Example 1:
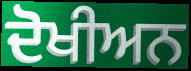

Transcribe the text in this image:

ਦੋਖੀਅਨ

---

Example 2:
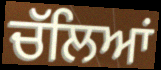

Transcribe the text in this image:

ਚੱਲਿਆਂ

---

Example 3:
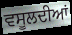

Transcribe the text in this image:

ਵਸੂਲਦੀਆਂ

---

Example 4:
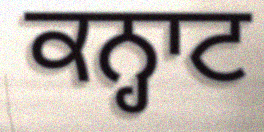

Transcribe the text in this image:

ਕਨ੍ਹਾਟ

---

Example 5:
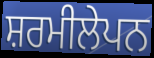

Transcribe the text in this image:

ਸ਼ਰਮੀਲੇਪਨ